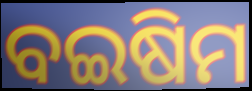
ବଇଷିମ